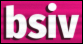
bsiv